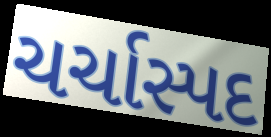
ચર્ચાસ્પદ